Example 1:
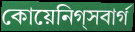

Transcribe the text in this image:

কোয়েনিগ্সবার্গ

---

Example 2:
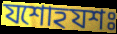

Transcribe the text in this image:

যশোহযশঃ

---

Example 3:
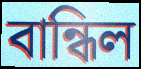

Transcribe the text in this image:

বান্ধিল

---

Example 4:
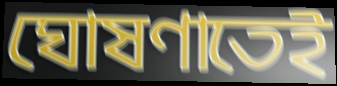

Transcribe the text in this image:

ঘোষণাতেই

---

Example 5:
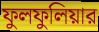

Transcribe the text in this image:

ফুলফুলিয়ার